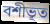
বশীভূত